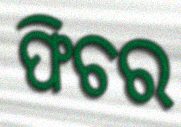
ଫିଚର